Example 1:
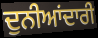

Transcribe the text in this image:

ਦੁਨੀਆਂਦਾਰੀ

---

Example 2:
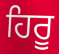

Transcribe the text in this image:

ਹਿਰੂ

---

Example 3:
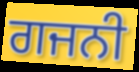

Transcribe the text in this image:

ਗਜਨੀ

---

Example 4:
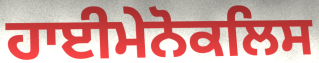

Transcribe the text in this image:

ਹਾਈਮੇਨੋਕਲਿਸ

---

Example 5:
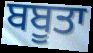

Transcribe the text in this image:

ਬਬੂਤਾ